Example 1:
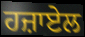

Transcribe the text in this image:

ਹਜ਼ਾਏਲ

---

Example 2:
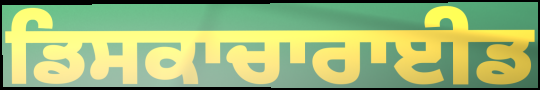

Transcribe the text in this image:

ਡਿਸਕਾਚਾਰਾਈਡ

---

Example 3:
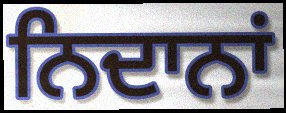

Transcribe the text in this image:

ਨਿਦਾਨਾਂ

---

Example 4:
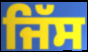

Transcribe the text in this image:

ਜਿੱਸ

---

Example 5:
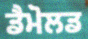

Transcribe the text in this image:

ਡੈਮੋਲਡ